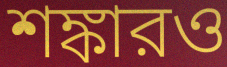
শঙ্কারও